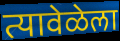
त्यावेळेला